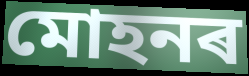
মোহনৰ